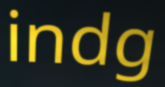
indg